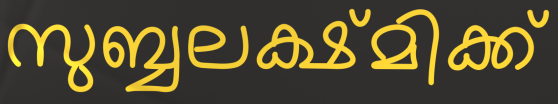
സുബ്ബലക്ഷ്മിക്ക്